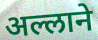
अल्लाने